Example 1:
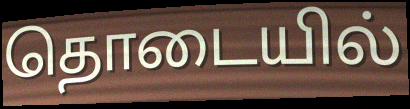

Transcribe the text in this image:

தொடையில்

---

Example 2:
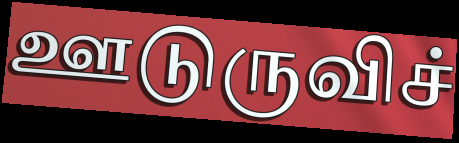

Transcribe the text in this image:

ஊடுருவிச்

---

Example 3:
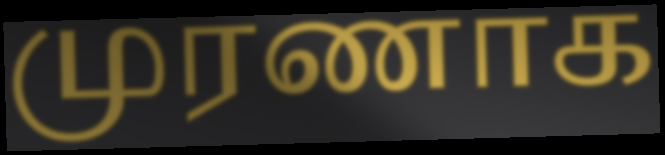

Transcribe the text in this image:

முரணாக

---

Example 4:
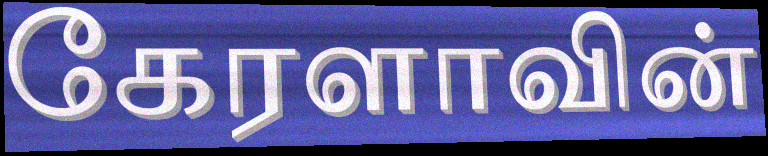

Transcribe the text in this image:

கேரளாவின்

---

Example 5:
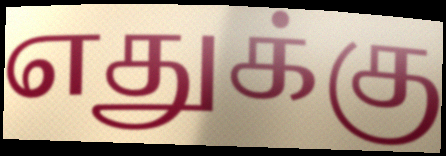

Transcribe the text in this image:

எதுக்கு